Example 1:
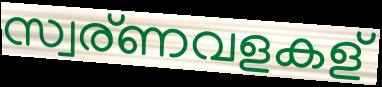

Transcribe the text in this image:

സ്വര്ണവളകള്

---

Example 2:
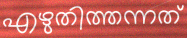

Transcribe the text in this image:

എഴുതിത്തന്നത്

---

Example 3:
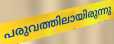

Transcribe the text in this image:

പരുവത്തിലായിരുന്നു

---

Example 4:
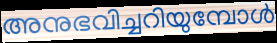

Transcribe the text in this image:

അനുഭവിച്ചറിയുമ്പോൾ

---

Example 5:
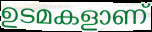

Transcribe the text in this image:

ഉടമകളാണ്